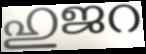
ഹുജറ